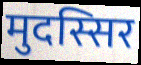
मुदस्सिर